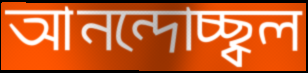
আনন্দোচ্ছ্বল